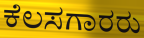
ಕೆಲಸಗಾರರು